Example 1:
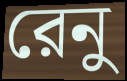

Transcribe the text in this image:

রেনু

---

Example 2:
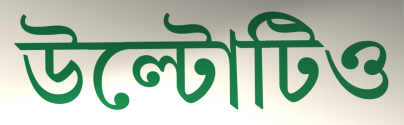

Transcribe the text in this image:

উল্টোটিও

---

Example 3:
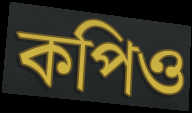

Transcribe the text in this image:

কপিও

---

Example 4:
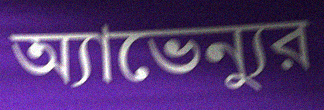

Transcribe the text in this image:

অ্যাভেন্যুর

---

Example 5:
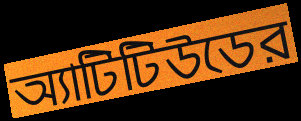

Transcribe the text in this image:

অ্যাটিটিউডের